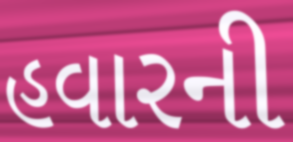
હવારની